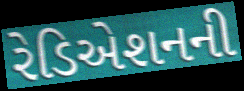
રેડિએશનની